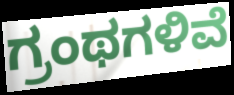
ಗ್ರಂಥಗಳಿವೆ